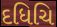
દધિચિ